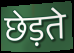
छेड़ते